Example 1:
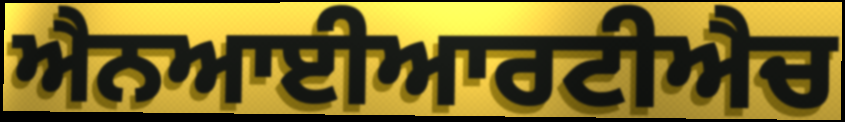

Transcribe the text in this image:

ਐਨਆਈਆਰਟੀਐਚ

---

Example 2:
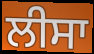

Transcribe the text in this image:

ਲੀਸਾ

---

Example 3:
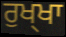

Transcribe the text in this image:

ਰੁਖ੍ਖਾ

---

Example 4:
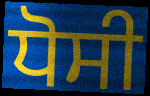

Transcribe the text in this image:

ਧੋਸੀ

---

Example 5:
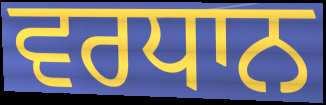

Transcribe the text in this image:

ਵਰਧਾਨ